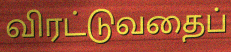
விரட்டுவதைப்